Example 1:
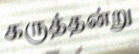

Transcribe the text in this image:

கருத்தன்று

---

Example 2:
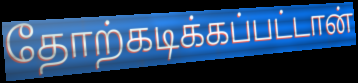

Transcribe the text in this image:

தோற்கடிக்கப்பட்டான்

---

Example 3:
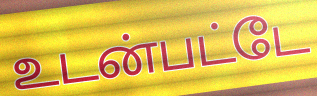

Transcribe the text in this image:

உடன்பட்டே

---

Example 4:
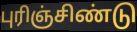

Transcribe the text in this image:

புரிஞ்சிண்டு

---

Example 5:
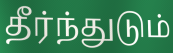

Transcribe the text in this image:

தீர்ந்துடும்